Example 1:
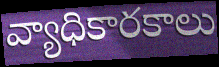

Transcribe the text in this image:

వ్యాధికారకాలు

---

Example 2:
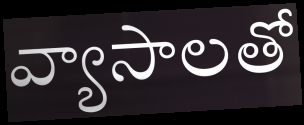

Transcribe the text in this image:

వ్యాసాలతో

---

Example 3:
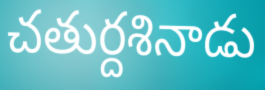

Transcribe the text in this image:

చతుర్దశినాడు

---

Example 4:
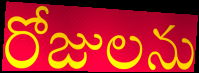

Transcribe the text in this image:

రోజులను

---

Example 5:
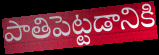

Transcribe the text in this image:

పాతిపెట్టడానికి